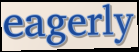
eagerly